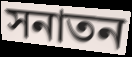
সনাতন